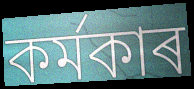
কৰ্মকাৰ